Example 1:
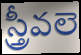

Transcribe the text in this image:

స్త్రీవలె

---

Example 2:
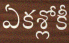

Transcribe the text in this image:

ఏకశ్లోకీ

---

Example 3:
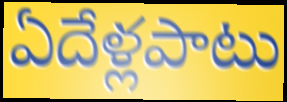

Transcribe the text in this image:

ఏదేళ్లపాటు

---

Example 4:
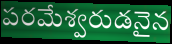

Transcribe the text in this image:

పరమేశ్వరుడనైన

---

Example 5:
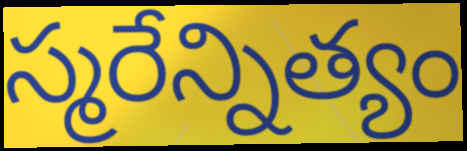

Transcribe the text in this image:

స్మరేన్నిత్యం